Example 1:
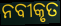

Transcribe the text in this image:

ନବୀକୃତ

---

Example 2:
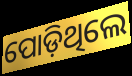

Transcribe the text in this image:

ପୋଡ଼ିଥିଲେ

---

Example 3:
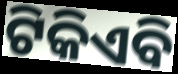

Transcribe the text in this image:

ଟିକିଏବି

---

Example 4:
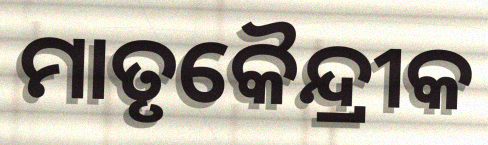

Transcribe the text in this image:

ମାତୃକୈନ୍ଦ୍ରୀକ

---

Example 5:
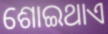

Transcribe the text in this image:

ଶୋଇଥାଏ